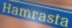
Hamrasta